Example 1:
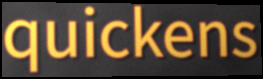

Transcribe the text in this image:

quickens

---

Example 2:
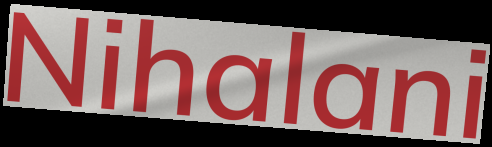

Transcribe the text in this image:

Nihalani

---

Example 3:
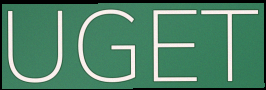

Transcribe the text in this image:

UGET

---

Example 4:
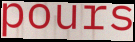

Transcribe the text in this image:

pours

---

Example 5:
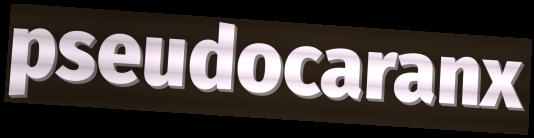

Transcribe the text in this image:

pseudocaranx